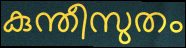
കുന്തീസുതം